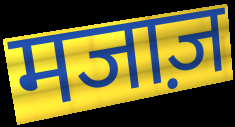
मजाज़